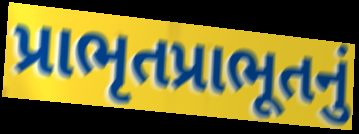
પ્રાભૃતપ્રાભૂતનું